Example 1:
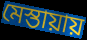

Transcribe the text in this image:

মেস্তায়ায়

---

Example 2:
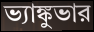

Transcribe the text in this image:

ভ্যাঙ্কুভার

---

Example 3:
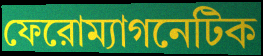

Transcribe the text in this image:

ফেরোম্যাগনেটিক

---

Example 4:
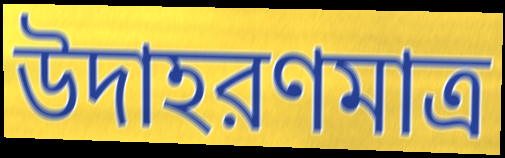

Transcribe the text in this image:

উদাহরণমাত্র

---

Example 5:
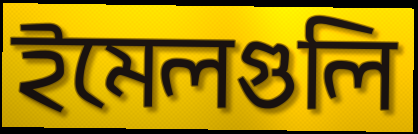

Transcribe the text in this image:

ইমেলগুলি